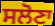
ਸਲੋਣਾ